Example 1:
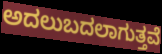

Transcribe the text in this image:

ಅದಲುಬದಲಾಗುತ್ತವೆ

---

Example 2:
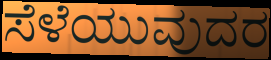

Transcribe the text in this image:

ಸೆಳೆಯುವುದರ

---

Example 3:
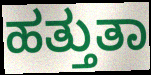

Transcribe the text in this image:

ಹತ್ತುತಾ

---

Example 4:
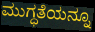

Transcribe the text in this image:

ಮುಗ್ಧತೆಯನ್ನೂ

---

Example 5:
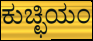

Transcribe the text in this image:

ಕುಚ್ಛಿಯಂ